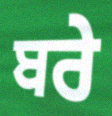
ਬਰੇ